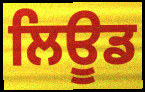
ਲਿਊਡ